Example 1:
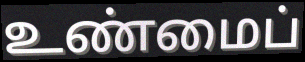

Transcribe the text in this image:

உண்மைப்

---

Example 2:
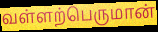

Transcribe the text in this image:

வள்ளற்பெருமான்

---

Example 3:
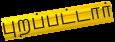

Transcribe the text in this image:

புறப்பட்டார்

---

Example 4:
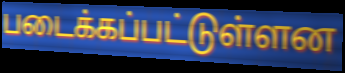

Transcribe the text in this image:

படைக்கப்பட்டுள்ளன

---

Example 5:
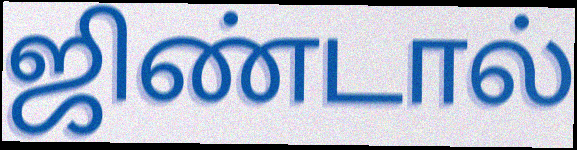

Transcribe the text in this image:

ஜிண்டால்